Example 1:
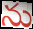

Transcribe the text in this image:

ను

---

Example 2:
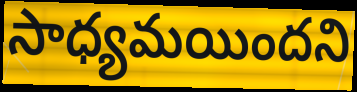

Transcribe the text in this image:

సాధ్యమయిందని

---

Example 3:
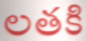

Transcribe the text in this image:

లతకి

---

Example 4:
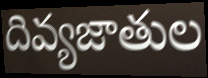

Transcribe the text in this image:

దివ్యజాతుల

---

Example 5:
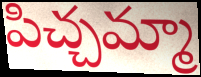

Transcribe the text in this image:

పిచ్చమ్మా